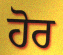
ਹੋਰ